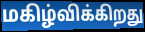
மகிழ்விக்கிறது